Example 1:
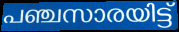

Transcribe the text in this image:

പഞ്ചസാരയിട്ട്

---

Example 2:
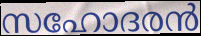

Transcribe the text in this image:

സഹോദരൻ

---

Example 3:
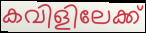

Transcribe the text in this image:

കവിളിലേക്ക്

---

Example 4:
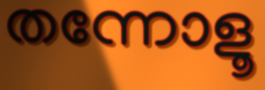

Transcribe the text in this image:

തന്നോളൂ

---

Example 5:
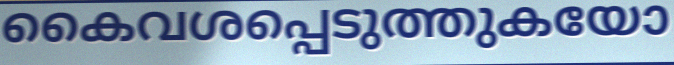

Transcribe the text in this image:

കൈവശപ്പെടുത്തുകയോ